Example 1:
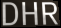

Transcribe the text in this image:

DHR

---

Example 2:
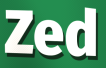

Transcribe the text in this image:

Zed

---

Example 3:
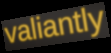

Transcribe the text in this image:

valiantly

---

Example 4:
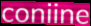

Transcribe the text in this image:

coniine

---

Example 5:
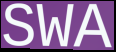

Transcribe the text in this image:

SWA